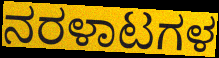
ನರಳಾಟಗಳ